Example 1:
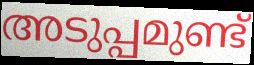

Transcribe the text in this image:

അടുപ്പമുണ്ട്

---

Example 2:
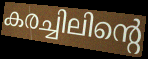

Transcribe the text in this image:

കരച്ചിലിന്റെ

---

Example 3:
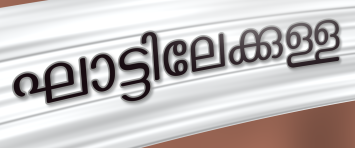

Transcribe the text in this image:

ഘാട്ടിലേക്കുള്ള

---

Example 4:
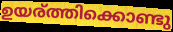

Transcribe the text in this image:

ഉയര്ത്തിക്കൊണ്ടു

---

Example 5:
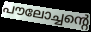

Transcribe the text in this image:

പൗലോച്ചന്റെ